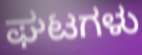
ಘಟಗಳು